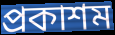
প্ৰকাশম